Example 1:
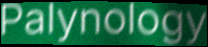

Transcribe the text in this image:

Palynology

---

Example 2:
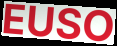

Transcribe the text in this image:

EUSO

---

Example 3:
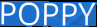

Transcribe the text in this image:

POPPY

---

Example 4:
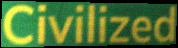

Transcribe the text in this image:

Civilized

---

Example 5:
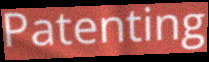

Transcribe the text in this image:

Patenting